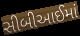
સીબીઆઈમાં